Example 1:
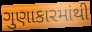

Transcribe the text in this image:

ગુણાકારમાંથી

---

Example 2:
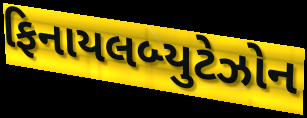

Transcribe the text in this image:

ફિનાયલબ્યુટેઝોન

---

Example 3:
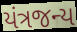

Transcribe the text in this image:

યંત્રજન્ય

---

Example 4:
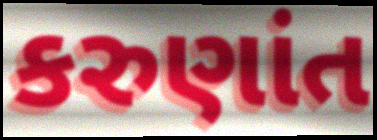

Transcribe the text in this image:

કરુણાંત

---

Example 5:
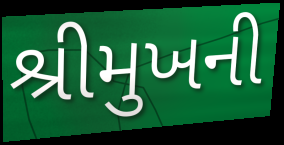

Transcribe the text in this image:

શ્રીમુખની